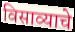
विसाव्याचे